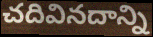
చదివినదాన్ని